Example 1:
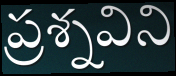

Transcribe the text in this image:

ప్రశ్నవిని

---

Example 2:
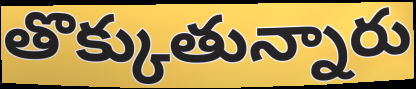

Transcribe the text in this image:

తొక్కుతున్నారు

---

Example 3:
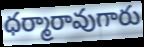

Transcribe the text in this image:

ధర్మారావుగారు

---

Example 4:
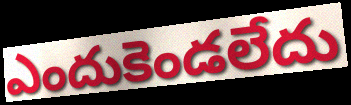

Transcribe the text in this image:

ఎందుకెండలేదు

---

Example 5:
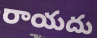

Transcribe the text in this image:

రాయదు